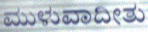
ಮುಳುವಾದೀತು